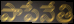
పాపేనేతి